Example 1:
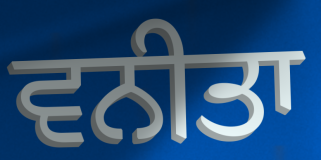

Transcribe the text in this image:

ਵਨੀਤਾ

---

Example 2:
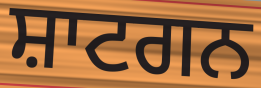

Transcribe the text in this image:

ਸ਼ਾਟਗਨ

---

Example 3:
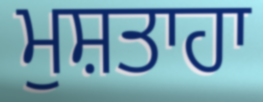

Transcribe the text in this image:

ਮੁਸ਼ਤਾਹਾ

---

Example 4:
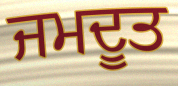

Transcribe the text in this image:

ਜਮਦੂਤ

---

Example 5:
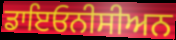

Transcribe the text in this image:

ਡਾਇਓਨੀਸੀਅਨ